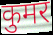
कुमर